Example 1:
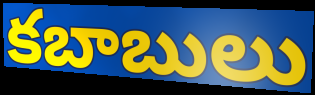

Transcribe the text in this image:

కబాబులు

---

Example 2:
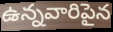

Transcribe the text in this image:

ఉన్నవారిపైన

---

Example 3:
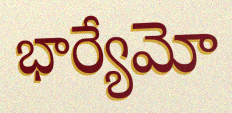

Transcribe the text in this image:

భార్యేమో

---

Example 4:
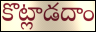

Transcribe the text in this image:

కొట్లాడదాం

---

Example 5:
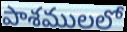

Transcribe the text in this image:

పాశములలో